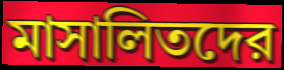
মাসালিতদের